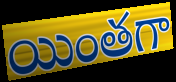
యింతగా